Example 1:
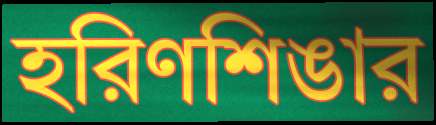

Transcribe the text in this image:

হরিণশিঙার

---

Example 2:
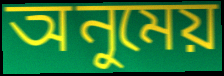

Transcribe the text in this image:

অনুমেয়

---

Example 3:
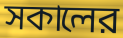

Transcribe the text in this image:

সকালের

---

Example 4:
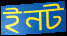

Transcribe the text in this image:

ইনট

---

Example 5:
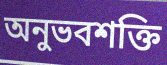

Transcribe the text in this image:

অনুভবশক্তি